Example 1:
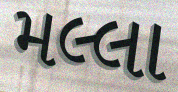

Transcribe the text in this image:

મલ્લા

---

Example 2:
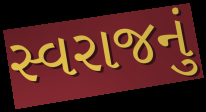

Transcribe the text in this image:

સ્વરાજનું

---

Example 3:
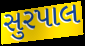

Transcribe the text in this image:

સુરપાલ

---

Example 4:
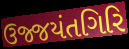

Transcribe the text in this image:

ઉજ્જયંતગિરિ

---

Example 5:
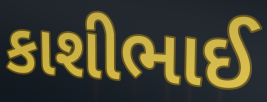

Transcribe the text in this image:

કાશીભાઈ